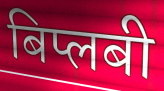
बिप्लबी